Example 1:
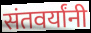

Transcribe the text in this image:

संतवर्यांनी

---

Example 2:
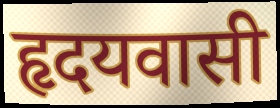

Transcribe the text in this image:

हृदयवासी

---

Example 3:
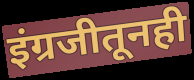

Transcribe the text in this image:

इंग्रजीतूनही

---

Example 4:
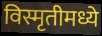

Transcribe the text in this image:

विस्मृतीमध्ये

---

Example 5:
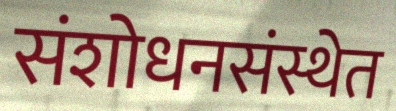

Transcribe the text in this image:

संशोधनसंस्थेत